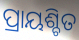
ପ୍ରାୟଶ୍ଚିତ